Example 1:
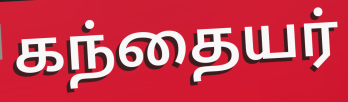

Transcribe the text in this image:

கந்தையர்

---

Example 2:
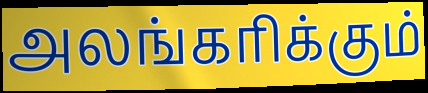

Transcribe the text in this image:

அலங்கரிக்கும்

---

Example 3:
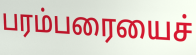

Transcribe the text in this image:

பரம்பரையைச்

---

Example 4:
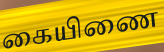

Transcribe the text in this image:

கையிணை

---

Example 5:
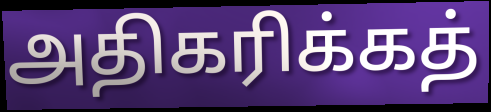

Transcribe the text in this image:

அதிகரிக்கத்